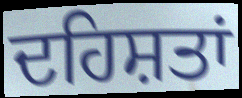
ਦਹਿਸ਼ਤਾਂ